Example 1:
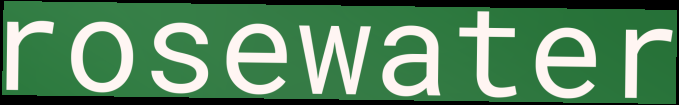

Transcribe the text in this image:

rosewater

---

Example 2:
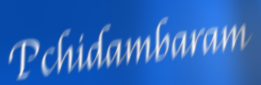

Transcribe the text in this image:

Pchidambaram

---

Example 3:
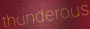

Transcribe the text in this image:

thunderous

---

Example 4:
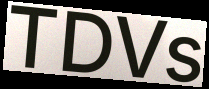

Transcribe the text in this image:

TDVs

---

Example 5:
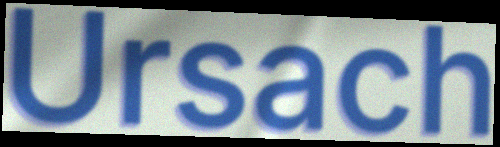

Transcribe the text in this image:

Ursach